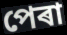
পেৰা